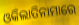
ଓକିଲାତିନାମାରେ